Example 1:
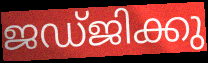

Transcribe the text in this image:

ജഡ്ജിക്കു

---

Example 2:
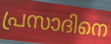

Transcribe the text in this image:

പ്രസാദിനെ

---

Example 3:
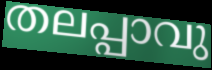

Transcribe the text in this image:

തലപ്പാവു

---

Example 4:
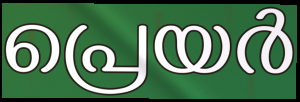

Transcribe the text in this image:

പ്രെയർ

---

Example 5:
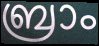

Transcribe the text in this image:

ബ്രാം